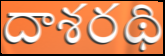
దాశరథి